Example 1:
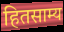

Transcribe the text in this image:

हितसाम्य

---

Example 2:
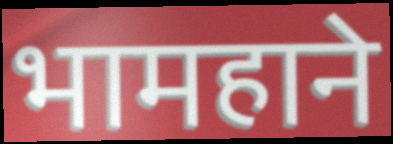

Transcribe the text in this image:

भामहाने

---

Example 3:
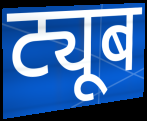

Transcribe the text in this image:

ट्यूब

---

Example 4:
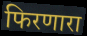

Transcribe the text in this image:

फिरणारा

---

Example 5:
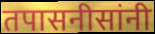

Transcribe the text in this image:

तपासनीसांनी